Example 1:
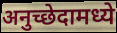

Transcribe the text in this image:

अनुच्छेदामध्ये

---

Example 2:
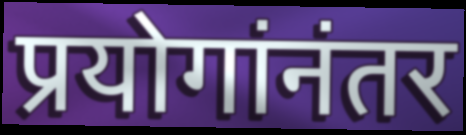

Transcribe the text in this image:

प्रयोगांनंतर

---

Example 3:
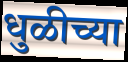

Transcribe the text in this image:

धुळीच्या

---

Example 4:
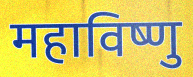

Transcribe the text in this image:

महाविष्णु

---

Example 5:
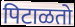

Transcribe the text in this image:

पिटाळतो